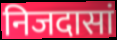
निजदासां